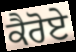
ਕੈਰੋਏ